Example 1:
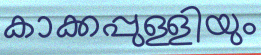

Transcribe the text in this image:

കാക്കപ്പുള്ളിയും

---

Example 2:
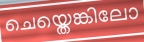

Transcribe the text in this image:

ചെയ്തെങ്കിലോ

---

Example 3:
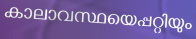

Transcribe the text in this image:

കാലാവസ്ഥയെപ്പറ്റിയും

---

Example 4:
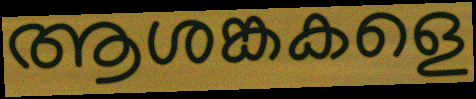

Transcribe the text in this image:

ആശങ്കകളെ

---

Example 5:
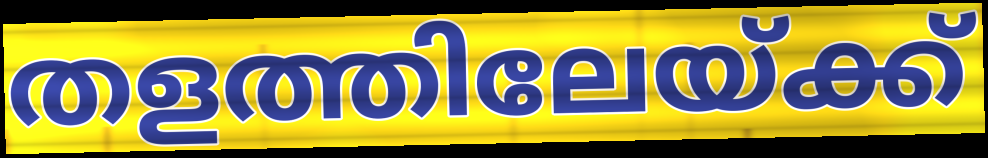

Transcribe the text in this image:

തളത്തിലേയ്ക്ക്